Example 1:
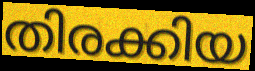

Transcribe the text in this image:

തിരക്കിയ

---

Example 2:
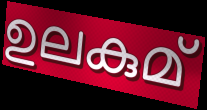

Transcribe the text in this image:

ഉലകുമ്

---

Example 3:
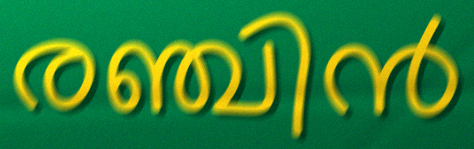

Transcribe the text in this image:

രഞ്ചിൻ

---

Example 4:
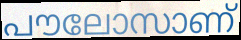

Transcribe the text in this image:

പൗലോസാണ്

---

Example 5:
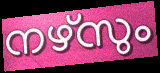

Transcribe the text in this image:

നഴ്സും